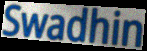
Swadhin